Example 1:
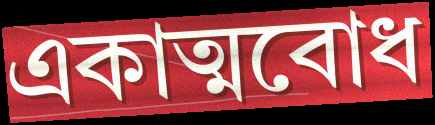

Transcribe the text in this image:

একাত্মবোধ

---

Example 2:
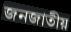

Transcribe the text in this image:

জনজাতীয়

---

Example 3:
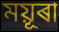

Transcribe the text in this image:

ময়ূৰা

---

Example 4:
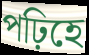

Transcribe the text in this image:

পঢ়িহে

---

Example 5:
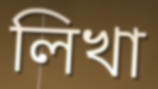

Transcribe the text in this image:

লিখা